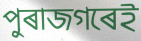
পুৰাজগৰেই